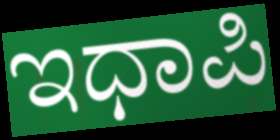
ಇಧಾಪಿ